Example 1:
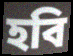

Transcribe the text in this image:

হবি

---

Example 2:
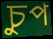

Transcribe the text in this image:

চুপ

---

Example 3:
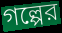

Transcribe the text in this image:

গল্পের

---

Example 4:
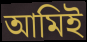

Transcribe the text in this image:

আমিই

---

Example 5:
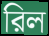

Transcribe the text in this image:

রিল